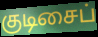
குடிசைப்